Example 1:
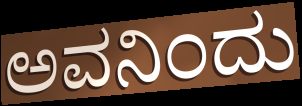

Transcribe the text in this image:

ಅವನಿಂದು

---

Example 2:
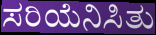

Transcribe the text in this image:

ಸರಿಯೆನಿಸಿತು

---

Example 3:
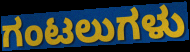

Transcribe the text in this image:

ಗಂಟಲುಗಳು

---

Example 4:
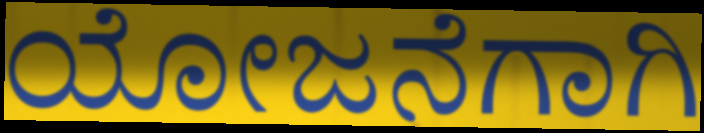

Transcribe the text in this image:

ಯೋಜನೆಗಾಗಿ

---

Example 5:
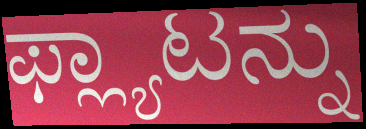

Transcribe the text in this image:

ಫ್ಲ್ಯಾಟನ್ನು